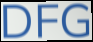
DFG